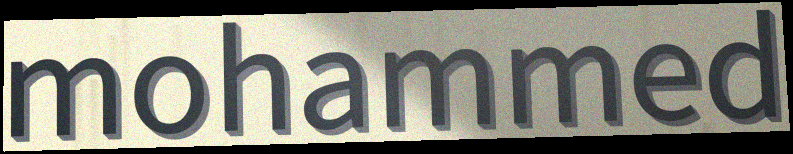
mohammed